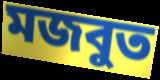
মজবুত